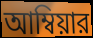
আম্বিয়ার